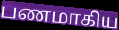
பணமாகிய